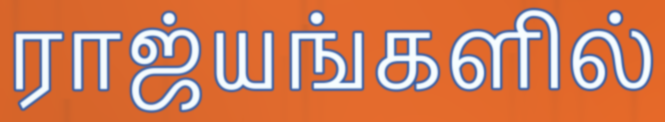
ராஜ்யங்களில்